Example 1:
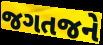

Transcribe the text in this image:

જગતજને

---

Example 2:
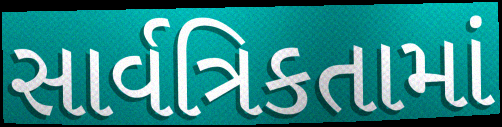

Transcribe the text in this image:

સાર્વત્રિકતામાં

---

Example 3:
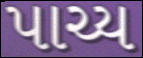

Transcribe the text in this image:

પાચ્ય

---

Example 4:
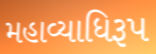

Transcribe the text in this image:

મહાવ્યાધિરૂપ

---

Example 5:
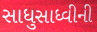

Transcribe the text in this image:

સાધુસાધ્વીની